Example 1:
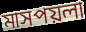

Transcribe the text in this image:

মাসপয়লা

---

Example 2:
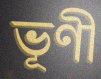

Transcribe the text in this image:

ভূণী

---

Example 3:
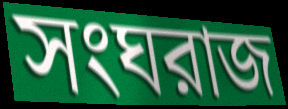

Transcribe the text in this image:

সংঘরাজ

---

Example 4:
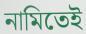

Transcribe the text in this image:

নামিতেই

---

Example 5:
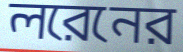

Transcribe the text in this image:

লরেনের